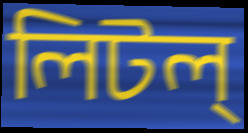
লিটল্